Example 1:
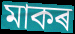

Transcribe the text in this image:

মাকৰ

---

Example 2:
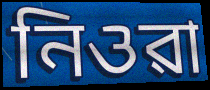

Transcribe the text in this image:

নিওৱা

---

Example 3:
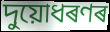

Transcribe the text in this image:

দুয়োধৰণৰ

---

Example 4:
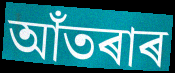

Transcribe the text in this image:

আঁতৰাৰ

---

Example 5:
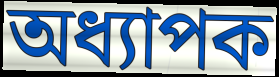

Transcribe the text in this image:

অধ্যাপক